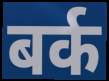
बर्क